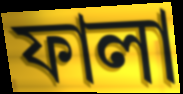
ফালা